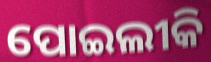
ପୋଇଲୀକି